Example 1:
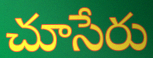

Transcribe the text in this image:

చూసేరు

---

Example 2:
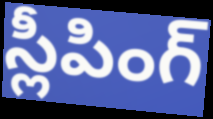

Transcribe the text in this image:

స్లీపింగ్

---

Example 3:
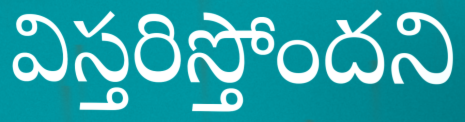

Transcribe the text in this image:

విస్తరిస్తోందని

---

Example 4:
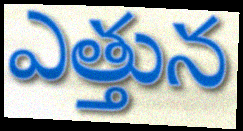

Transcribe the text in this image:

ఎత్తున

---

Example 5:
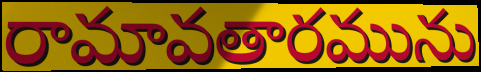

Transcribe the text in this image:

రామావతారమును